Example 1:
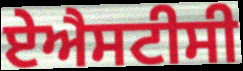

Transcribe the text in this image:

ਏਐਸਟੀਸੀ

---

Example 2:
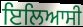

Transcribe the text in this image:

ਇਲਿਆਸੀ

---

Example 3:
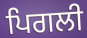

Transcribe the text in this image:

ਪਿਗਲੀ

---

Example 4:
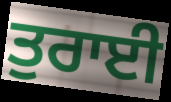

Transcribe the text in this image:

ਤੁਰਾਈ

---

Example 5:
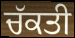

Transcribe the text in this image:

ਚੱਕਤੀ